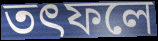
তৎফলে